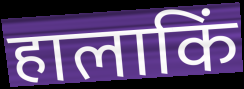
हालाकिं